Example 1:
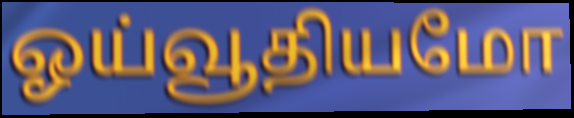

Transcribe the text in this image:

ஓய்வூதியமோ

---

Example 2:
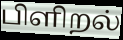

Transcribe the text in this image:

பிளிறல்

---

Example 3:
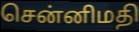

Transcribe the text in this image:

சென்னிமதி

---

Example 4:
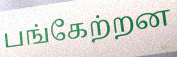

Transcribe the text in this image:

பங்கேற்றன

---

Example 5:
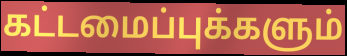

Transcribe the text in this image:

கட்டமைப்புக்களும்